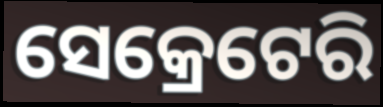
ସେକ୍ରେଟେରି